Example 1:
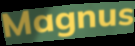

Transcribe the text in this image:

Magnus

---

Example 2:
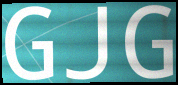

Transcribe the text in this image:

GJG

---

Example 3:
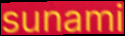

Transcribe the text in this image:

sunami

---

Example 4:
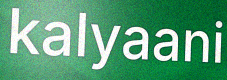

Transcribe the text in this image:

kalyaani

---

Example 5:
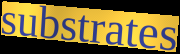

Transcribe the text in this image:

substrates